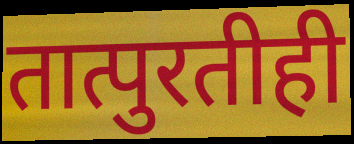
तात्पुरतीही